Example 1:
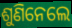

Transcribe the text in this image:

ଶୁଣିନେଲେ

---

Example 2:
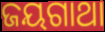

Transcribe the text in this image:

ଜୟଗାଥା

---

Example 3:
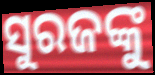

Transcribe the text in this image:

ସୁରଜଙ୍କୁ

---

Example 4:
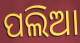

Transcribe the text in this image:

ପଲିଆ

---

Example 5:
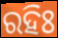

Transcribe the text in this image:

ରହିଃ